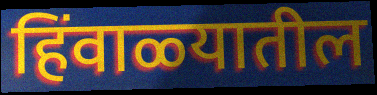
हिंवाळ्यातील